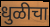
धुळीचा